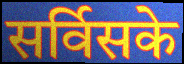
सर्विसके